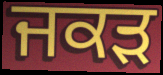
ਜਕੜ